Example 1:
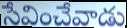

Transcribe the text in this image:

సేవించేవాడు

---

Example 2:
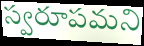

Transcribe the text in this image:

స్వరూపమని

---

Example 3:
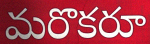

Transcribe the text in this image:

మరొకరూ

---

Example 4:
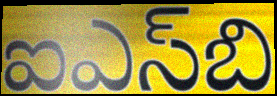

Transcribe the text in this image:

ఐఎస్‌బి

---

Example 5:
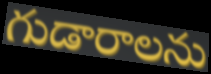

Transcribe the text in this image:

గుడారాలను